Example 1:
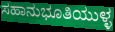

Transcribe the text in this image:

ಸಹಾನುಭೂತಿಯುಳ್ಳ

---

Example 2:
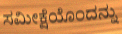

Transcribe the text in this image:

ಸಮೀಕ್ಷೆಯೊಂದನ್ನು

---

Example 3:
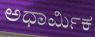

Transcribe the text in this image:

ಅಧಾರ್ಮಿಕ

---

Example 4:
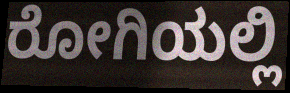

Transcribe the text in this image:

ರೋಗಿಯಲ್ಲಿ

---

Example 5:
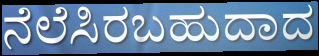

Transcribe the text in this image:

ನೆಲೆಸಿರಬಹುದಾದ